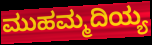
ಮುಹಮ್ಮದಿಯ್ಯ